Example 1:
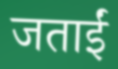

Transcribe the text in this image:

जताईं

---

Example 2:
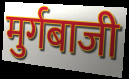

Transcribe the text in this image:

मुर्गबाजी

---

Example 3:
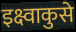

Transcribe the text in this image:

इक्ष्वाकुसे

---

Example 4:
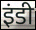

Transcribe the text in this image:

इंडी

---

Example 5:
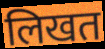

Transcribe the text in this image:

लिखत